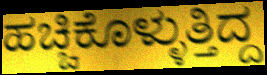
ಹಚ್ಚಿಕೊಳ್ಳುತ್ತಿದ್ದ